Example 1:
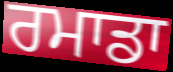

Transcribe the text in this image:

ਰਮਾਡਾ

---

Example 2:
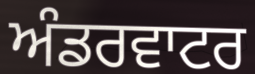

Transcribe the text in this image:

ਅੰਡਰਵਾਟਰ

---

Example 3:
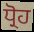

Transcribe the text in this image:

ਧ੍ਰੋਹ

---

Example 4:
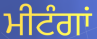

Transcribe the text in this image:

ਮੀਟੰਗਾਂ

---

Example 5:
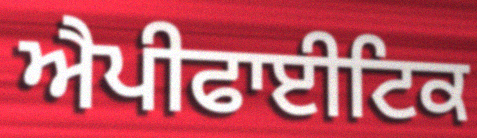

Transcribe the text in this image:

ਐਪੀਫਾਈਟਿਕ